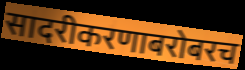
सादरीकरणाबरोबरच